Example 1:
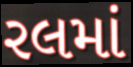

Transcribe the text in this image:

રલમાં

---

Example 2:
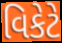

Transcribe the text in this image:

વિકેટે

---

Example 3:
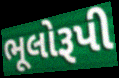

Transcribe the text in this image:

ભૂલોરૂપી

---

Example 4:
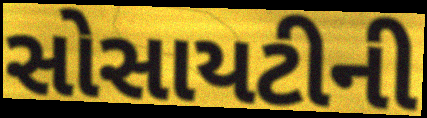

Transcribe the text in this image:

સોસાયટીની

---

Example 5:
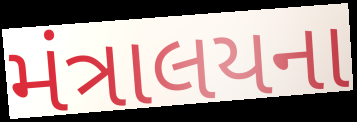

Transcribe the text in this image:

મંત્રાલયના